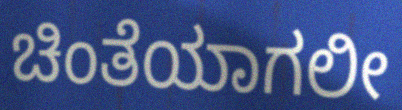
ಚಿಂತೆಯಾಗಲೀ